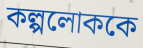
কল্পলোককে